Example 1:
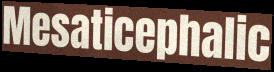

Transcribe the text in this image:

Mesaticephalic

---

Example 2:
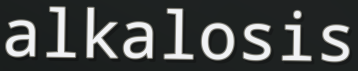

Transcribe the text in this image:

alkalosis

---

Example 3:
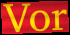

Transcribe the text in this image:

Vor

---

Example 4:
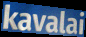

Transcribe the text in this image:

kavalai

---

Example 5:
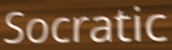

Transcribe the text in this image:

Socratic